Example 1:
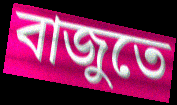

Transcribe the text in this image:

বাজুতে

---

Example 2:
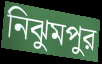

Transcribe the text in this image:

নিঝুমপুর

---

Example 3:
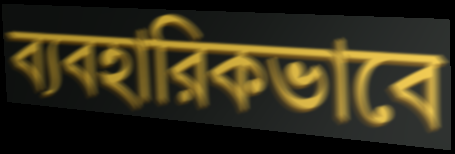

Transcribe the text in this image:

ব্যবহারিকভাবে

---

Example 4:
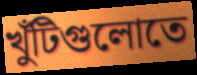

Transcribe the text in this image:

খুঁটিগুলোতে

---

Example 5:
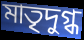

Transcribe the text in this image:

মাতৃদুগ্ধ